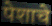
पेशाचे